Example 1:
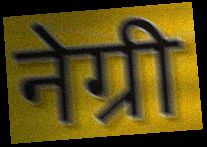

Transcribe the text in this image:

नेग्री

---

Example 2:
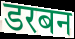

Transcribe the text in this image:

डरबन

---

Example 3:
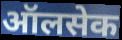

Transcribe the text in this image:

ऑलसेक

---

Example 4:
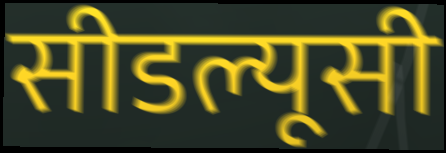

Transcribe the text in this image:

सीडल्यूसी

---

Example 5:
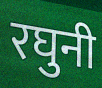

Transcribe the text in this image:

रघुनी